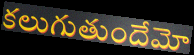
కలుగుతుందేమో